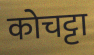
कोचट्टा